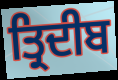
ਤ੍ਰਿਦੀਬ